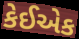
કેઈએક